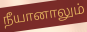
நீயானாலும்